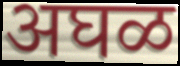
अघळ